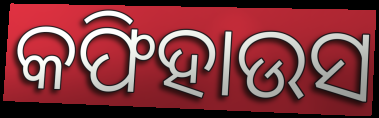
କଫିହାଉସ